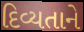
દિવ્યતાને